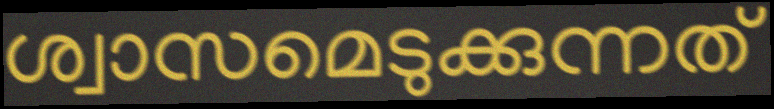
ശ്വാസമെടുക്കുന്നത്